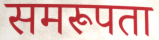
समरूपता